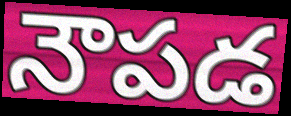
నౌపడ